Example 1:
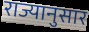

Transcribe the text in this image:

राज्यानुसार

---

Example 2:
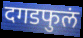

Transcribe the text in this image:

दगडफुलं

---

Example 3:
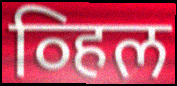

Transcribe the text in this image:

व्हिल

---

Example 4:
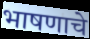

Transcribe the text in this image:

भाषणाचे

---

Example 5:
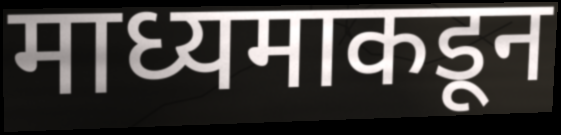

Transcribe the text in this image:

माध्यमाकडून